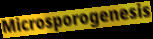
Microsporogenesis